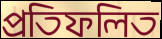
প্রতিফলিত